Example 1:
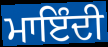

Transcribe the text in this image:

ਮਾਇੰਦੀ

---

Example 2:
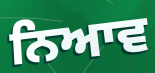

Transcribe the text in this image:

ਨਿਆਵ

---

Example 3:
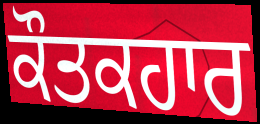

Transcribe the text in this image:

ਕੌਤਕਹਾਰ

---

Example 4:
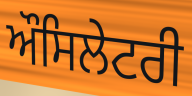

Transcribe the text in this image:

ਔਸਿਲੇਟਰੀ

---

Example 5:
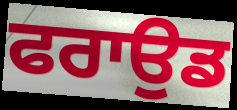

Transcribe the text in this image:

ਫਰਾਉਡ